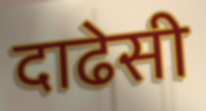
दाढेसी